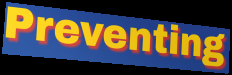
Preventing